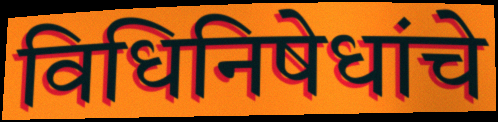
विधिनिषेधांचे